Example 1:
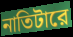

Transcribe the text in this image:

নাতিটারে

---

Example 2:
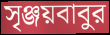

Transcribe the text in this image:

সৃঞ্জয়বাবুর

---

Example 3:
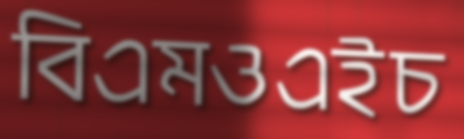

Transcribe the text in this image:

বিএমওএইচ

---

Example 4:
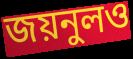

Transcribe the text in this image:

জয়নুলও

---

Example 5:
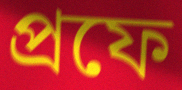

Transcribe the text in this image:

প্রফে